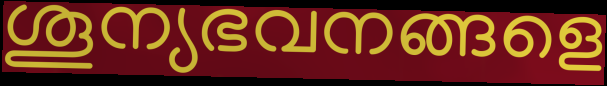
ശൂന്യഭവനങ്ങളെ